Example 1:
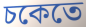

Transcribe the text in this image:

চকেতে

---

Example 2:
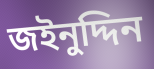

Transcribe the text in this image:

জইনুদ্দিন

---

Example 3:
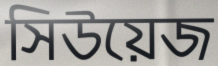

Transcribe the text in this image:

সিউয়েজ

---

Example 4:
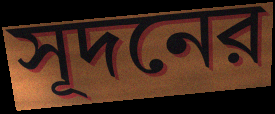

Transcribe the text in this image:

সূদনের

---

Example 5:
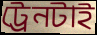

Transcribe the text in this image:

ট্রেনটাই